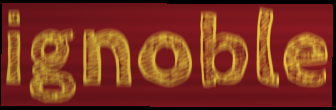
ignoble